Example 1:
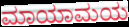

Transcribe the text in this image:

ಮಾಯಾಮಯ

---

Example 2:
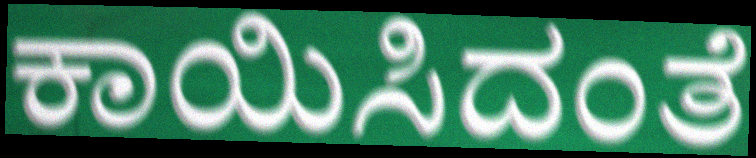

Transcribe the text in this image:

ಕಾಯಿಸಿದಂತೆ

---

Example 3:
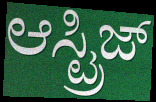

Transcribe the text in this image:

ಆಸ್ಟ್ರಿಜ್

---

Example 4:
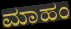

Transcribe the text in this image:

ಮಾಹಂ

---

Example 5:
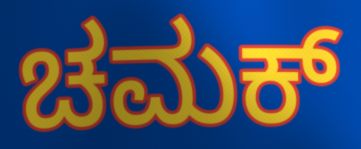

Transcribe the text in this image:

ಚಮಕ್